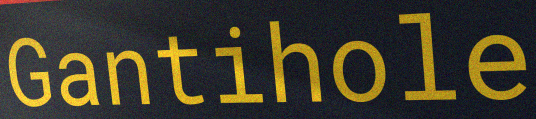
Gantihole